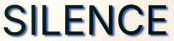
SILENCE